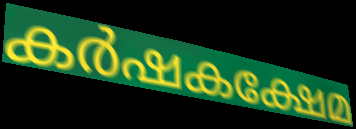
കർഷകക്ഷേമ